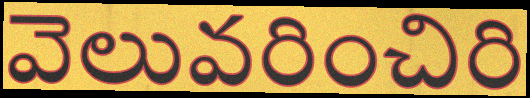
వెలువరించిరి